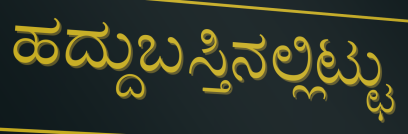
ಹದ್ದುಬಸ್ತಿನಲ್ಲಿಟ್ಟು